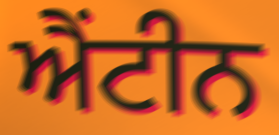
ਐਂਟੀਨ